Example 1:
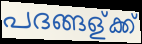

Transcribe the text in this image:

പദങ്ങള്ക്ക്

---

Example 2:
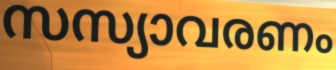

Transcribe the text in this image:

സസ്യാവരണം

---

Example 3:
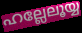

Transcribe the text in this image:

ഹല്ലേലൂയ്യ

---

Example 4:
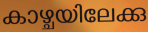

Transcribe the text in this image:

കാഴ്ചയിലേക്കു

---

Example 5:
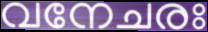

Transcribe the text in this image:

വനേചരഃ